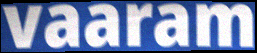
vaaram